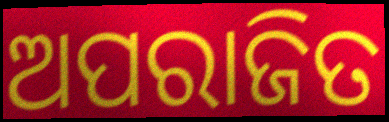
ଅପରାଜିତ